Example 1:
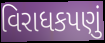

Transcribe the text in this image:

વિરાધકપણું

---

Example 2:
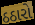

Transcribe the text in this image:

ઠઠારો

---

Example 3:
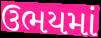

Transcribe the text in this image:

ઉભયમાં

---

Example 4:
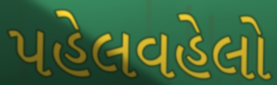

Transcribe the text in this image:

પહેલવહેલો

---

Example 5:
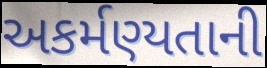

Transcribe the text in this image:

અકર્મણ્યતાની